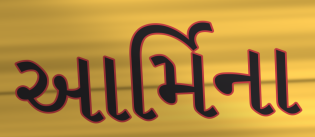
આર્મિના